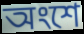
অংশে